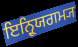
ਇਨ੍ਦ੍ਰਿਯਗਮ੍ਯ